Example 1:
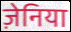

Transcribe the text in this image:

ज़ेनिया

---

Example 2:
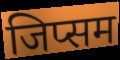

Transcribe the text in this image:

जिप्सम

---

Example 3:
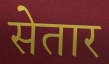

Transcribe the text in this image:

सेतार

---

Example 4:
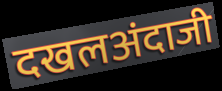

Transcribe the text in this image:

दखलअंदाजी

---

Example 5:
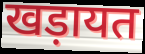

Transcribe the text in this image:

खड़ायत